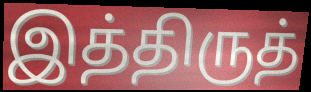
இத்திருத்